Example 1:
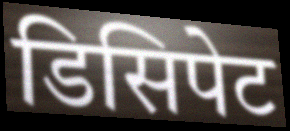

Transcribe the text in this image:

डिसिपेट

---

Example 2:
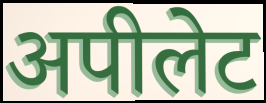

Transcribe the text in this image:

अपीलेट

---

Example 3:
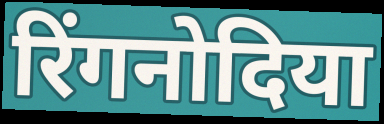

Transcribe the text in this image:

रिंगनोदिया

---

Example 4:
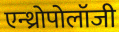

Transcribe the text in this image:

एन्थ्रोपोलॉजी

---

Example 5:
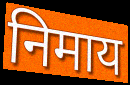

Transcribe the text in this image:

निमाय